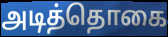
அடித்தொகை